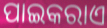
ପାଇକରାଏ